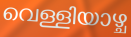
വെള്ളിയാഴ്ച